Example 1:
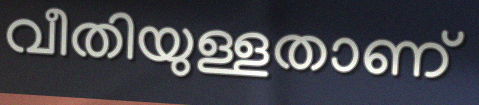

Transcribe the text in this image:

വീതിയുള്ളതാണ്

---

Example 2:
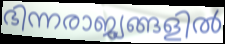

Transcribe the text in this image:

ഭിന്നരാജ്യങ്ങളിൽ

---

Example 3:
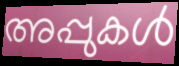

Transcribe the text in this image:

അപ്പുകൾ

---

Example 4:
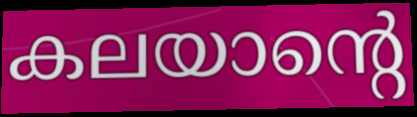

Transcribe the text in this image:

കലയാന്റെ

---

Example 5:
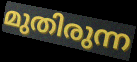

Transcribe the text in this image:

മുതിരുന്ന